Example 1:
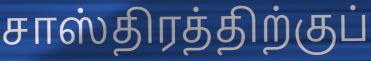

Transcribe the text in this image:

சாஸ்திரத்திற்குப்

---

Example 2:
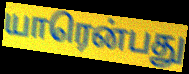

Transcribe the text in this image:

யாரென்பது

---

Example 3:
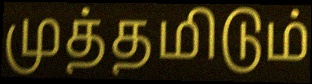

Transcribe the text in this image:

முத்தமிடும்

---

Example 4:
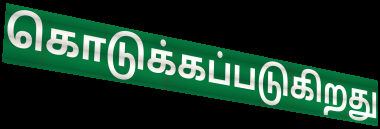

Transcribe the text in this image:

கொடுக்கப்படுகிறது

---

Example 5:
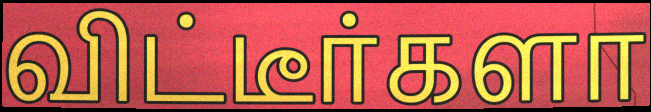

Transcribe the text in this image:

விட்டீர்களா